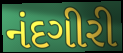
નંદગીરી